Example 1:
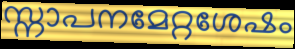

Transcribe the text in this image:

സ്നാപനമേറ്റശേഷം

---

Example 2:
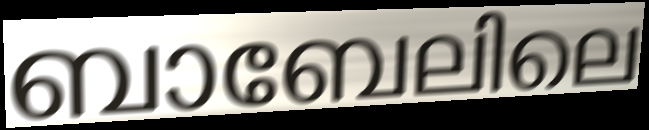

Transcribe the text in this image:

ബാബേലിലെ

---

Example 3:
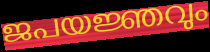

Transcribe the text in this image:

ജപയജ്ഞവും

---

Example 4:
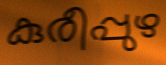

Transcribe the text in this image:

കുരീപ്പുഴ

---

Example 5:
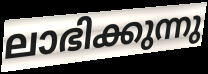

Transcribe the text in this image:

ലാഭിക്കുന്നു